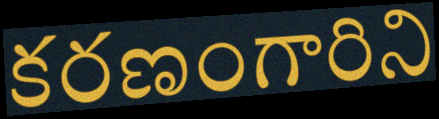
కరణంగారిని